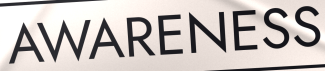
AWARENESS